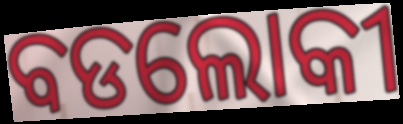
ବଡଲୋକୀ